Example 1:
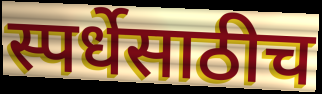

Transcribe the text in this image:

स्पर्धेसाठीच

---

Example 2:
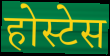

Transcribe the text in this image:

होस्टेस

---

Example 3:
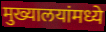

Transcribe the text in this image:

मुख्यालयांमध्ये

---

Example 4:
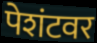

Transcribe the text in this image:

पेशंटवर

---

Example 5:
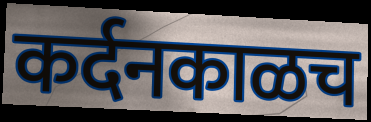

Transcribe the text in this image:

कर्दनकाळच